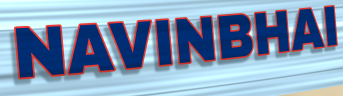
NAVINBHAI